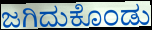
ಜಗಿದುಕೊಂಡು